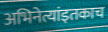
अभिनेत्यांइतकाच